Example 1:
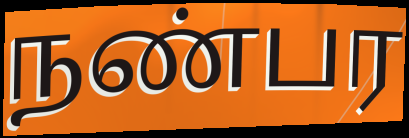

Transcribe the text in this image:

நண்பர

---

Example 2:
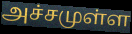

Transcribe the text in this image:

அச்சமுள்ள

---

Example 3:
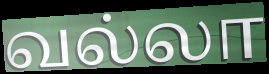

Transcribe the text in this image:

வல்லா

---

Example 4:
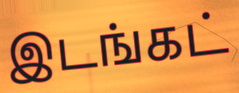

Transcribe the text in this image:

இடங்கட்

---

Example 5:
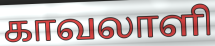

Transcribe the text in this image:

காவலாளி